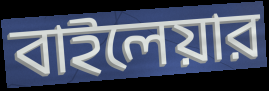
বাইলেয়ার